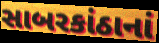
સાબરકાંઠાનાં